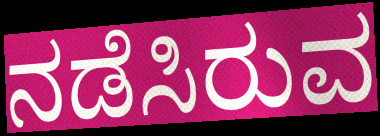
ನಡೆಸಿರುವ